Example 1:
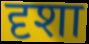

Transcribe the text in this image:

दृशा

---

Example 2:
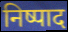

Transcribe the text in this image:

निष्पाद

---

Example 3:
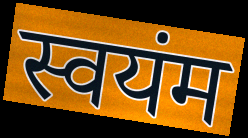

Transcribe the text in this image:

स्वयंम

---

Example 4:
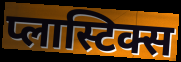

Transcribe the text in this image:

प्लास्टिक्स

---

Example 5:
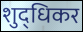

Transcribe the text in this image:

शुद्धिकर